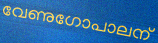
വേണുഗോപാലന്